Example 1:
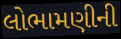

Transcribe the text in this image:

લોભામણીની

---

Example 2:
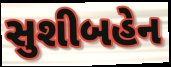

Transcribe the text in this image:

સુશીબહેન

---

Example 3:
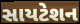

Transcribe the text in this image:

સાયટેશન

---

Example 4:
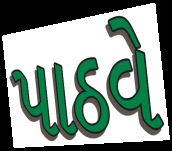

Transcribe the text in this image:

પાઠવે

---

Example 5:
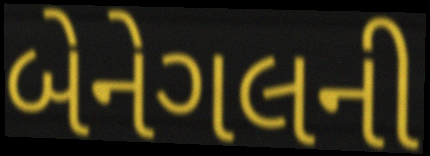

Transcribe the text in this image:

બેનેગલની